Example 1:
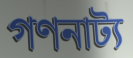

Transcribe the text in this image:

গণনাট্য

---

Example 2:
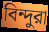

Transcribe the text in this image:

বিন্দুরা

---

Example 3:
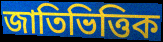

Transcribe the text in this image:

জাতিভিত্তিক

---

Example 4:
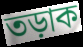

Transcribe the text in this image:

তড়াক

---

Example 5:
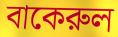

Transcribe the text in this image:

বাকেরুল